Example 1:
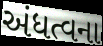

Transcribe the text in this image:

અંધત્વના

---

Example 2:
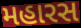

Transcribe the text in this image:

મહારસ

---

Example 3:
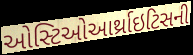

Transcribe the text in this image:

ઓસ્ટિઓઆર્થ્રાઇટિસની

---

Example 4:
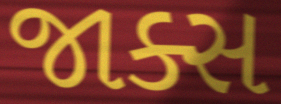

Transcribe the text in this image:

જાક્સ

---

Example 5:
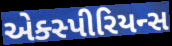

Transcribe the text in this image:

એક્સ્પીરિયન્સ